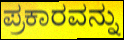
ಪ್ರಕಾರವನ್ನು